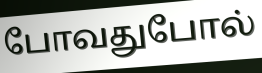
போவதுபோல்